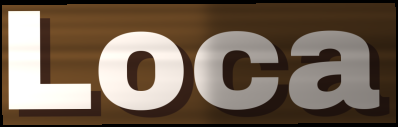
Loca